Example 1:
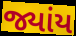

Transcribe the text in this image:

જ્યાંય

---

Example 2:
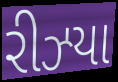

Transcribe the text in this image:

રીઝ્યા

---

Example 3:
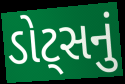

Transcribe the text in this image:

ડોટ્સનું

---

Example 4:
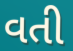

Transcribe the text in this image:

વતી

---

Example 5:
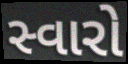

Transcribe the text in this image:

સ્વારો